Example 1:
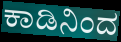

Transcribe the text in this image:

ಕಾಡಿನಿಂದ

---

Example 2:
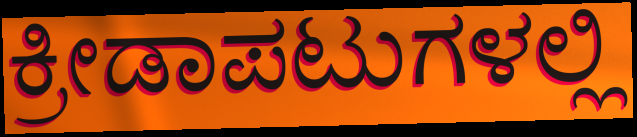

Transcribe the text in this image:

ಕ್ರೀಡಾಪಟುಗಳಲ್ಲಿ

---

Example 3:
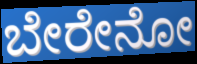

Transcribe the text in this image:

ಬೇರೇನೋ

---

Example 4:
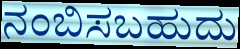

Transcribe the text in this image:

ನಂಬಿಸಬಹುದು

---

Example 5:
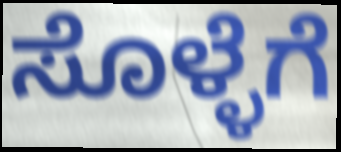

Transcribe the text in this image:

ಸೊಳ್ಳೆಗೆ